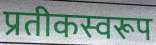
प्रतीकस्वरूप